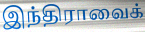
இந்திராவைக்